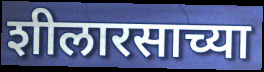
शीलारसाच्या